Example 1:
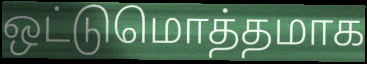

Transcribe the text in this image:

ஒட்டுமொத்தமாக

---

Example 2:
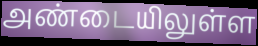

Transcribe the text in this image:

அண்டையிலுள்ள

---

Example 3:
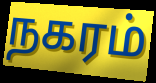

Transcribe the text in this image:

நகரம்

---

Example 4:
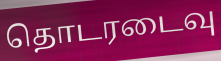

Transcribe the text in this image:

தொடரடைவு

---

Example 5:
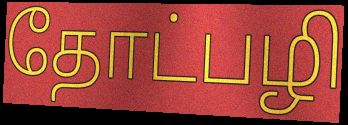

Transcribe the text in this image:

தோட்பழி